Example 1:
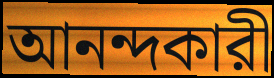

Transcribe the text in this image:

আনন্দকারী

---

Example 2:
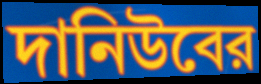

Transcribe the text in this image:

দানিউবের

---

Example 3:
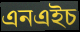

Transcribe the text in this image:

এনএইচ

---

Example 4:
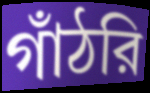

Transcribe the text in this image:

গাঁঠরি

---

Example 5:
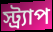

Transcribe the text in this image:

স্ট্র্যাপ